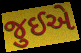
જુઈએ